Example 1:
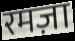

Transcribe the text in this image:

रमज़ा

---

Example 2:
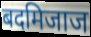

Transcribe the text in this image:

बदमिजाज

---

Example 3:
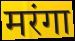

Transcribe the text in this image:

मरंगा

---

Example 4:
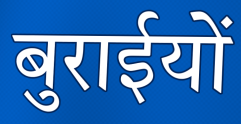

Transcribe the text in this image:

बुराईयों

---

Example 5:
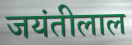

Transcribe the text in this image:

जयंतीलाल